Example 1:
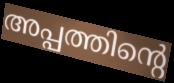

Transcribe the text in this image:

അപ്പത്തിന്റെ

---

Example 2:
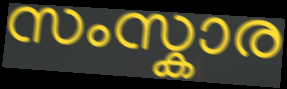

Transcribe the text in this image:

സംസ്കാര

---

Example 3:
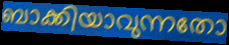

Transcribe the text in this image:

ബാക്കിയാവുന്നതോ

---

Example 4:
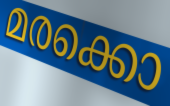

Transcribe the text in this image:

മരക്കൊ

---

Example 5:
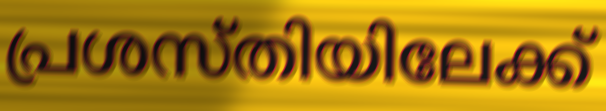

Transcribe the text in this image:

പ്രശസ്തിയിലേക്ക്